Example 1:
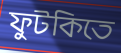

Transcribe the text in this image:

ফুটকিতে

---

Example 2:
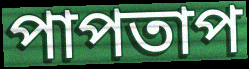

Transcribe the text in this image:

পাপতাপ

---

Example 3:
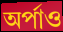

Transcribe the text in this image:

অর্পাও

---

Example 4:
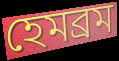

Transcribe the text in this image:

হেমব্রম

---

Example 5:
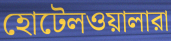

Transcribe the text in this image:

হোটেলওয়ালারা